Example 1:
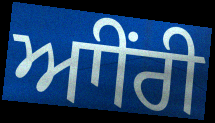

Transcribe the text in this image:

ਆੀਂਰੀ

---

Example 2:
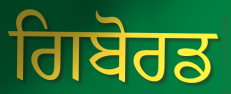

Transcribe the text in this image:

ਗਿਬੋਰਡ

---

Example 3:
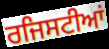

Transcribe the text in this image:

ਰਜਿਸਟੀਆਂ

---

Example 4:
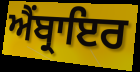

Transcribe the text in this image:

ਐਂਬ੍ਰਾਇਰ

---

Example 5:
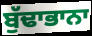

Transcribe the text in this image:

ਬੁੱਢਾਭਾਨਾ